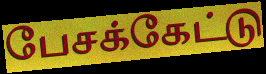
பேசக்கேட்டு